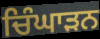
ਚਿੰਘਾੜਨ